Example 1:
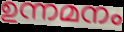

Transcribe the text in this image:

ഉന്നമനം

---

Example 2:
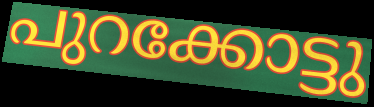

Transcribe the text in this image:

പുറക്കോട്ടു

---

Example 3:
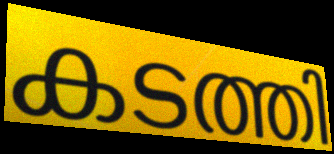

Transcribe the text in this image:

കടത്തി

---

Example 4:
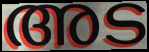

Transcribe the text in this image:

അട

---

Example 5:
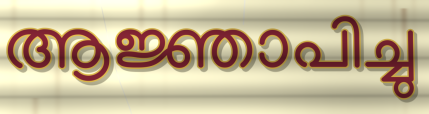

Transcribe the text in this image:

ആജ്ഞാപിച്ചു